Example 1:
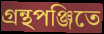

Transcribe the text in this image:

গ্রন্থপঞ্জিতে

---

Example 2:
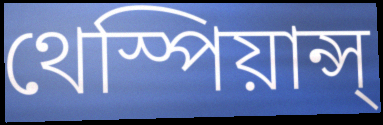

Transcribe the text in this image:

থেস্পিয়ান্স্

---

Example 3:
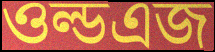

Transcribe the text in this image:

ওল্ডএজ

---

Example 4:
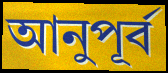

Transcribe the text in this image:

আনুপূর্ব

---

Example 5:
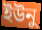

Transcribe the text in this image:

ইউনু